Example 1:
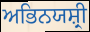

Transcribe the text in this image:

ਅਭਿਨਯਸ਼੍ਰੀ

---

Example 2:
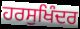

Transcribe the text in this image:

ਹਰਸੁਖਿੰਦਰ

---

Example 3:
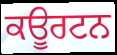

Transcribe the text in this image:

ਕਊਰਟਨ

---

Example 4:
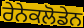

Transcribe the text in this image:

ਰੇਨੇਕਲੋਡੇਨ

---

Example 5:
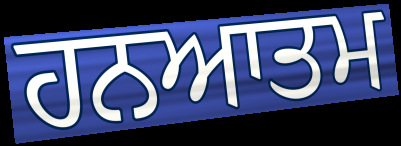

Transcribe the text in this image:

ਹਨਆਤਮ